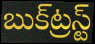
బుక్‌ట్రస్ట్